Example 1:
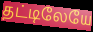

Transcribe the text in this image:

தட்டிலேயே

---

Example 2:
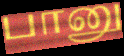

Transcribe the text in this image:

பானு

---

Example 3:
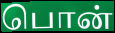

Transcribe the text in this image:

பொன்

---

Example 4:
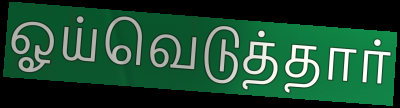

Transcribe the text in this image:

ஓய்வெடுத்தார்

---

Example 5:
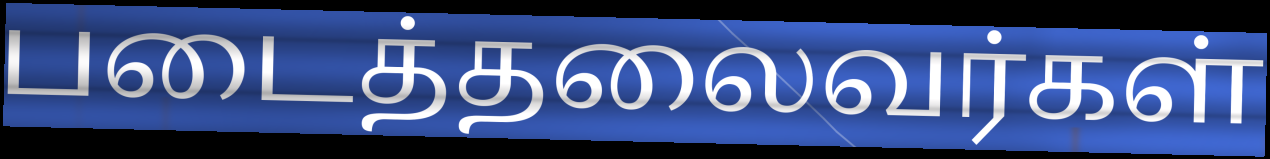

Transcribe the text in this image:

படைத்தலைவர்கள்